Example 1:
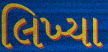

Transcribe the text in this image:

લિખ્યા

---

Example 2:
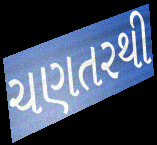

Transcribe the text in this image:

ચણતરથી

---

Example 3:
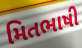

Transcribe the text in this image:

મિતભાષી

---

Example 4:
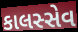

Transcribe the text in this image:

કાલસ્સેવ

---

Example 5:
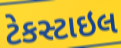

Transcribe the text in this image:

ટેકસ્ટાઇલ